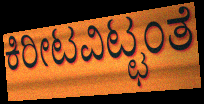
ಕಿರೀಟವಿಟ್ಟಂತೆ